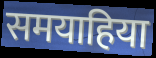
समयाहिया